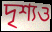
দৃশ্যও